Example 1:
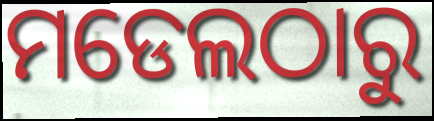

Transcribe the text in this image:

ମଡେଲଠାରୁ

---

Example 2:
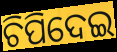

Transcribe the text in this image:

ଚିପିଦେଇ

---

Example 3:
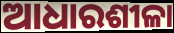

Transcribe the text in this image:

ଆଧାରଶୀଳା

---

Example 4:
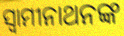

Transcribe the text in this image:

ସ୍ଵାମୀନାଥନଙ୍କ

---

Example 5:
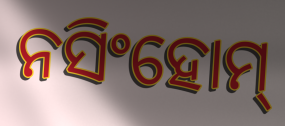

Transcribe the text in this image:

ନସିଂହୋମ୍